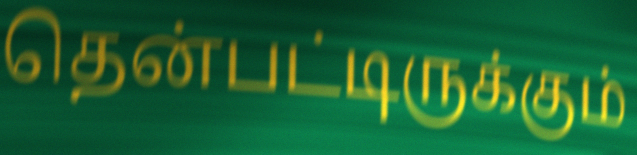
தென்பட்டிருக்கும்